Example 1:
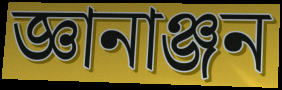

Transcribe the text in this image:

জ্ঞানাঞ্জন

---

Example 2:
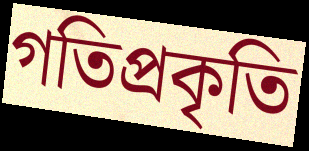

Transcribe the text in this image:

গতিপ্রকৃতি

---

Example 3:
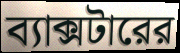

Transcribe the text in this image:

ব্যাক্সটারের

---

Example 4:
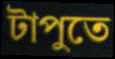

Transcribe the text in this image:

টাপুতে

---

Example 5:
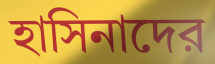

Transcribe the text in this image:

হাসিনাদের